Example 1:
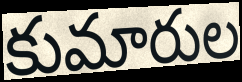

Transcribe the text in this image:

కుమారుల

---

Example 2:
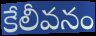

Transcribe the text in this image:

కేలీవనం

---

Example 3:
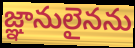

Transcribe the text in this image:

జ్ఞానులైనను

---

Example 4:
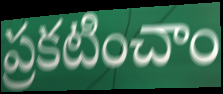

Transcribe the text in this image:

ప్రకటించాం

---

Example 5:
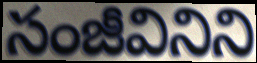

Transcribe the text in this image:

సంజీవినిని